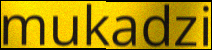
mukadzi